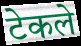
टेकले